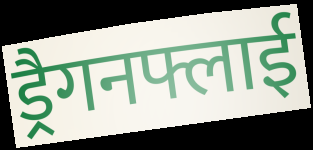
ड्रैगनफ्लाई